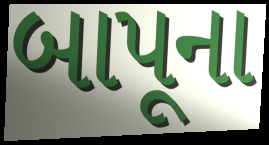
બાપૂના